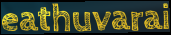
eathuvarai